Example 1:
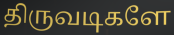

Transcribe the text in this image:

திருவடிகளே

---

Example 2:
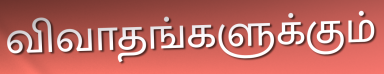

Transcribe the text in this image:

விவாதங்களுக்கும்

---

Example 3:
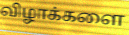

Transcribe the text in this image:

விழாக்களை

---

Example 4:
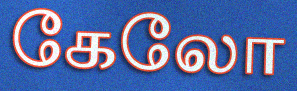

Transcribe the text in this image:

கேலோ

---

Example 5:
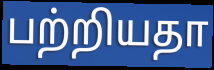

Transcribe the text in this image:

பற்றியதா